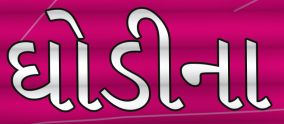
ઘોડીના